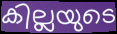
കില്ലയുടെ